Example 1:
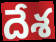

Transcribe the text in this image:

దేశ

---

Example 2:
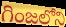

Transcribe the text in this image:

గింజలోని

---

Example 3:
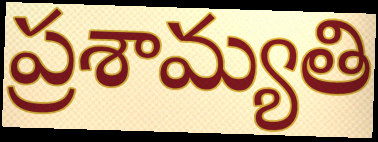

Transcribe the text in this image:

ప్రశామ్యతి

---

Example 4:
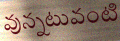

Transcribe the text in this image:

వున్నటువంటి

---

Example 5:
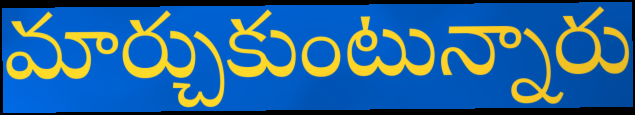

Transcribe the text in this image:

మార్చుకుంటున్నారు